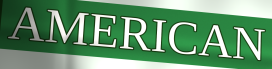
AMERICAN